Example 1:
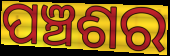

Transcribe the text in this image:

ପଞ୍ଚଶର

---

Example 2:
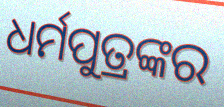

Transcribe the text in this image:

ଧର୍ମପୁତ୍ରଙ୍କର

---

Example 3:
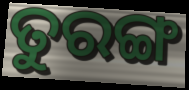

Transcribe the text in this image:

ତୁରଙ୍ଗ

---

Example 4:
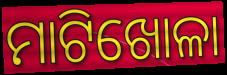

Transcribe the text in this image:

ମାଟିଖୋଳା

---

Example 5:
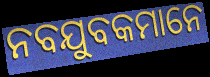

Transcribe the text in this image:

ନବଯୁବକମାନେ